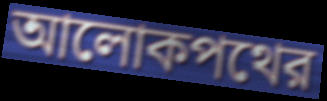
আলোকপথের